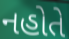
નહોતે